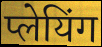
प्लेयिंग